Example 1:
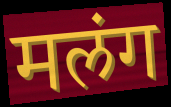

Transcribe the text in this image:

मलंग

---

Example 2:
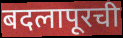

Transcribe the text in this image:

बदलापूरची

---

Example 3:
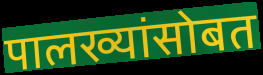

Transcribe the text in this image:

पालख्यांसोबत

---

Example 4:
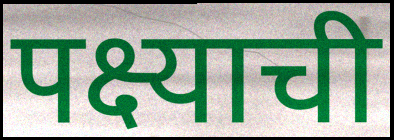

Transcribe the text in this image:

पक्ष्याची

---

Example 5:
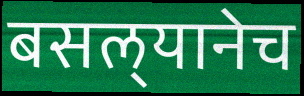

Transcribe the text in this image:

बसल्यानेच